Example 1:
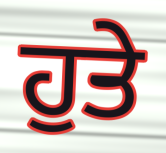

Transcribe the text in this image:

ਹੁਤੇ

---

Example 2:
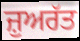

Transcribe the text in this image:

ਜ਼ੁਅਰੱਤ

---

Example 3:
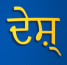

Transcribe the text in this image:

ਦੇਸ਼੍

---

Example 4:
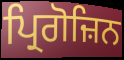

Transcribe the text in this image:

ਪ੍ਰਿਗੋਜ਼ਿਨ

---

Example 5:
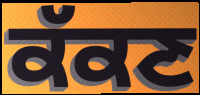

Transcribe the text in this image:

ਕੱਕਣ